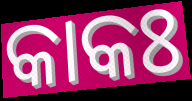
କାକଃ